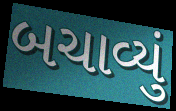
બચાવ્યું